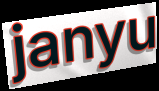
janyu